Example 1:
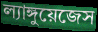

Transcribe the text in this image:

ল্যাঙ্গুয়েজেস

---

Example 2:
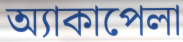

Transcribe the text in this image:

অ্যাকাপেলা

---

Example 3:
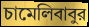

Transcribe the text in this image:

চামেলিবাবুর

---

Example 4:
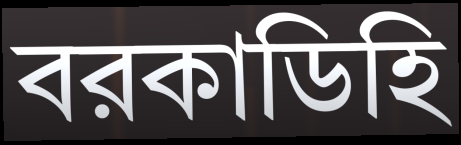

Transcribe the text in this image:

বরকাডিহি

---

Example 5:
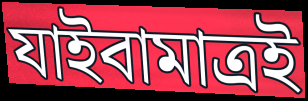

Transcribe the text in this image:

যাইবামাত্রই